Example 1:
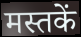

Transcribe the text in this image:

मस्तकें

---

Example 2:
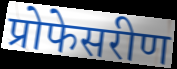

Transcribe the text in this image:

प्रोफेसरीण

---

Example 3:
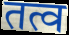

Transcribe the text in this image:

तत्व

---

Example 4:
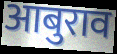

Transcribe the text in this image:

आबुराव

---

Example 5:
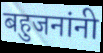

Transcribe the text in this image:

बहुजनांनी